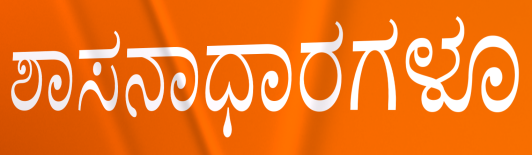
ಶಾಸನಾಧಾರಗಳೂ